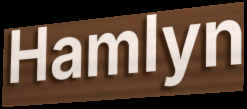
Hamlyn